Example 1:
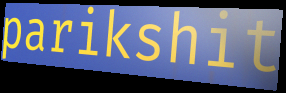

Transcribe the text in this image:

parikshit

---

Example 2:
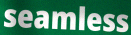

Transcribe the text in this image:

seamless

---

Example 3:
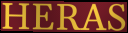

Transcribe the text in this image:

HERAS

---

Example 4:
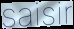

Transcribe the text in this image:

saisir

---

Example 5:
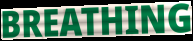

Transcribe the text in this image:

BREATHING